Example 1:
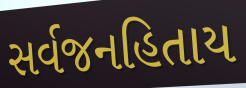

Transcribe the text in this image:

સર્વજનહિતાય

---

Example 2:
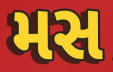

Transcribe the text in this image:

મસ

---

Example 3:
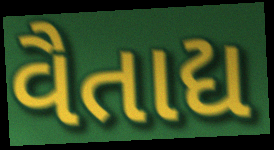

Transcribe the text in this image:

વૈતાદ્ય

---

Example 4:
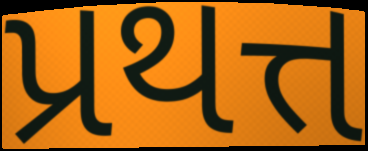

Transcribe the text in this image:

પ્રથત્ત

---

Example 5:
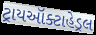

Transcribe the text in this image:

ટ્રાયઑક્ટાહેડ્રલ